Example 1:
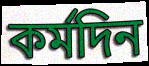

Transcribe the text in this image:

কৰ্মদিন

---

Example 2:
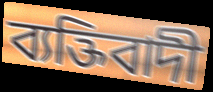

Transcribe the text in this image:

ব্যক্তিবাদী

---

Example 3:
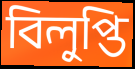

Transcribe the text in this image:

বিলুপ্তি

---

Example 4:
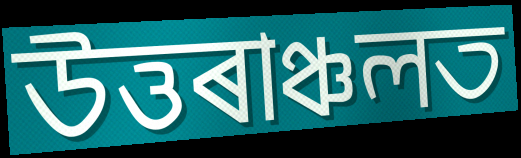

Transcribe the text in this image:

উত্তৰাঞ্চলত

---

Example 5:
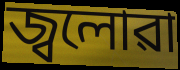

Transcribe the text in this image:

জ্বলোৱা